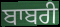
ਬਾਬਰੀ